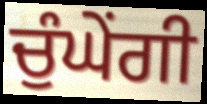
ਚੁੰਘੇਂਗੀ